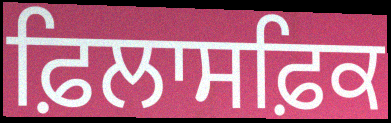
ਫ਼ਿਲਾਸਫ਼ਿਕ